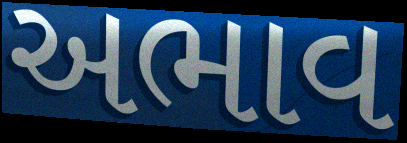
અભાવ